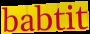
babtit